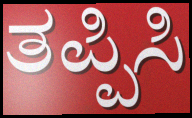
ತಪ್ಪಿಸಿ